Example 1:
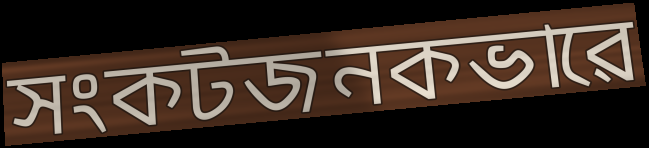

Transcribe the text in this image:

সংকটজনকভাৱে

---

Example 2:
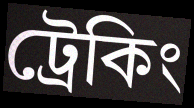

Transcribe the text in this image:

ট্ৰেকিং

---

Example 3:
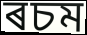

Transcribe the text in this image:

ৰচম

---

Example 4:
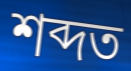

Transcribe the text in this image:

শব্দত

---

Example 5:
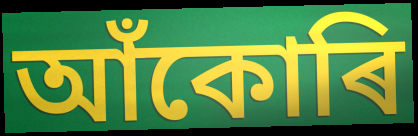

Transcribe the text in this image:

আঁকোৰি